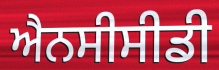
ਐਨਸੀਸੀਡੀ